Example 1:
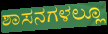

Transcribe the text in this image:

ಶಾಸನಗಳಲ್ಲೂ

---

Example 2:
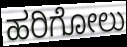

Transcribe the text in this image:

ಹರಿಗೋಲು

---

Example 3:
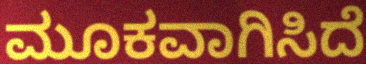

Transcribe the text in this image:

ಮೂಕವಾಗಿಸಿದೆ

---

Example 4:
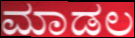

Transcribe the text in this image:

ಮಾಡಲ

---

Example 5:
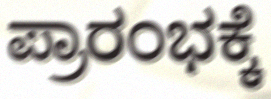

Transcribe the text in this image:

ಪ್ರಾರಂಭಕ್ಕೆ